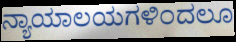
ನ್ಯಾಯಾಲಯಗಳಿಂದಲೂ